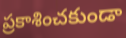
ప్రకాశించకుండా